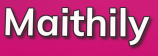
Maithily